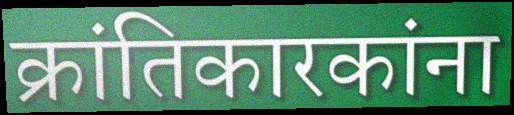
क्रांतिकारकांना